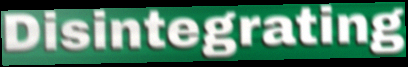
Disintegrating